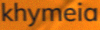
khymeia